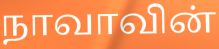
நாவாவின்